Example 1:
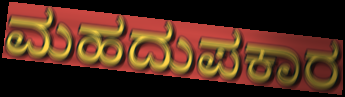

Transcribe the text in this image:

ಮಹದುಪಕಾರ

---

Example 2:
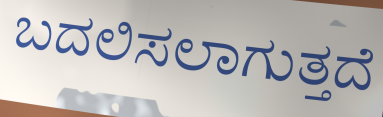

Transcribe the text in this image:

ಬದಲಿಸಲಾಗುತ್ತದೆ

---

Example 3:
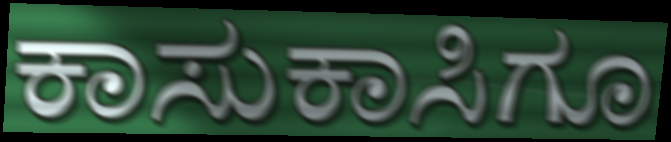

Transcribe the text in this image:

ಕಾಸುಕಾಸಿಗೂ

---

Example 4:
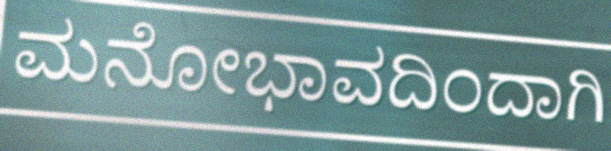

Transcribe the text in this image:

ಮನೋಭಾವದಿಂದಾಗಿ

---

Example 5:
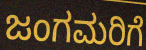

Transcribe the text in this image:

ಜಂಗಮರಿಗೆ